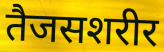
तैजसशरीर